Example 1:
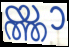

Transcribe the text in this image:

യ്ത്താ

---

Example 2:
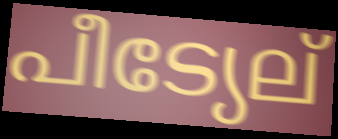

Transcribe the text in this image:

പീട്യേല്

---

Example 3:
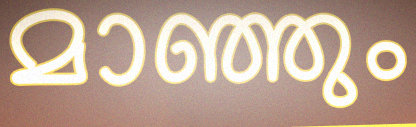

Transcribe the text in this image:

മാഞ്ഞും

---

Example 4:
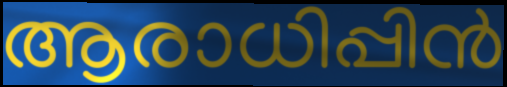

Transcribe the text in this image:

ആരാധിപ്പിൻ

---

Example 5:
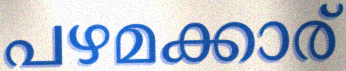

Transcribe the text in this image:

പഴമക്കാര്